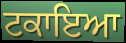
ਟਕਾਇਆ